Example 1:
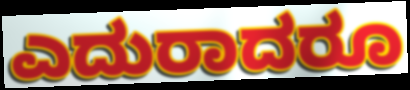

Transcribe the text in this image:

ಎದುರಾದರೂ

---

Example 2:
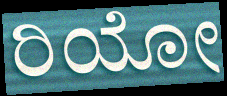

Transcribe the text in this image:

ರಿಯೋ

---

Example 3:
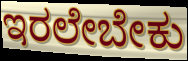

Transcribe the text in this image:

ಇರಲೇಬೇಕು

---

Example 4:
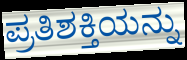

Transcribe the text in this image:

ಪ್ರತಿಶಕ್ತಿಯನ್ನು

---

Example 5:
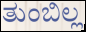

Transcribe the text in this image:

ತುಂಬಿಲ್ಲ